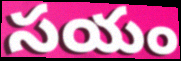
సయం